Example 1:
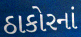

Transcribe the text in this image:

ઠાકોરનાં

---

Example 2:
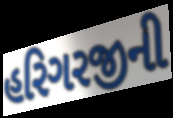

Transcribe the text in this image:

હરિગરજીની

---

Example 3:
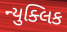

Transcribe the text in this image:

ન્યુક્લિક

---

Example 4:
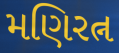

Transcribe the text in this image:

મણિરત્ન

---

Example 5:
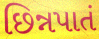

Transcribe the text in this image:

છિન્નપાતં